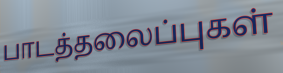
பாடத்தலைப்புகள்